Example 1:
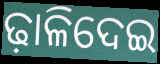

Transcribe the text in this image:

ଢ଼ାଳିଦେଇ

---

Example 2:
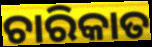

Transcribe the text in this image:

ଚାରିକାତ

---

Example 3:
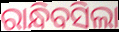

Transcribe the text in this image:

ରାନ୍ଧିବସିଲା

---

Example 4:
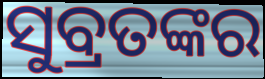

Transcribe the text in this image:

ସୁବ୍ରତଙ୍କର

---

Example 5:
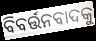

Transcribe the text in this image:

ବିବର୍ତ୍ତନବାଦକୁ